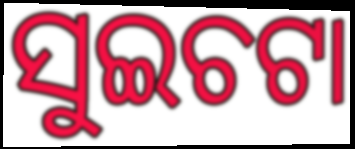
ସୁଇଚଟା